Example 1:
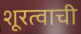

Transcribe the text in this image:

शूरत्वाची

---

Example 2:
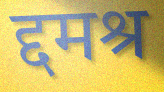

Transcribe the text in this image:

द्दमश्र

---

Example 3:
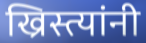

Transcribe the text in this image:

ख्रिस्त्यांनी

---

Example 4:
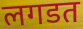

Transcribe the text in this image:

लगडत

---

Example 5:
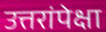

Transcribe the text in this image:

उत्तरांपेक्षा